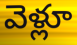
వెళ్లూ